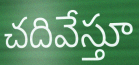
చదివేస్తూ